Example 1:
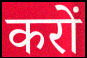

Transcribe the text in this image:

करों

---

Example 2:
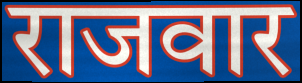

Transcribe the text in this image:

राजवार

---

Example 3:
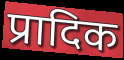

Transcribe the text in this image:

प्रादिक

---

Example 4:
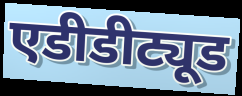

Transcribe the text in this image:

एडीडीट्यूड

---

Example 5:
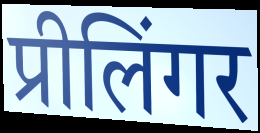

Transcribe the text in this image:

प्रीलिंगर